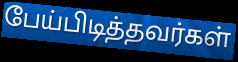
பேய்பிடித்தவர்கள்